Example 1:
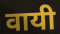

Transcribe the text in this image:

वायी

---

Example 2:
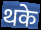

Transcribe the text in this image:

थके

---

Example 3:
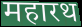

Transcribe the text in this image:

महारथ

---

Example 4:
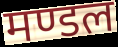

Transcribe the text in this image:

मण्डल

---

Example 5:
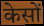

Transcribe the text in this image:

केसों